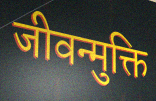
जीवन्मुक्ति